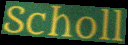
Scholl